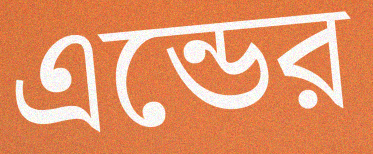
এন্ডের